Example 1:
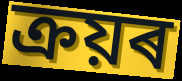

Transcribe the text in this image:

ক্ৰয়ৰ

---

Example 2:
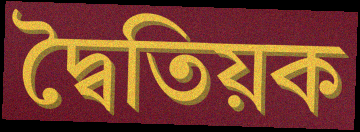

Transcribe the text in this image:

দ্বৈতিয়ক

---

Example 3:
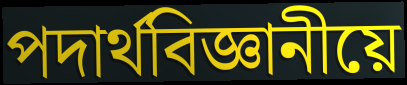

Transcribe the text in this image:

পদাৰ্থবিজ্ঞানীয়ে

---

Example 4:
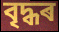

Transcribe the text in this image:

বৃদ্ধৰ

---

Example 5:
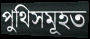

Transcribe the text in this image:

পুথিসমূহত